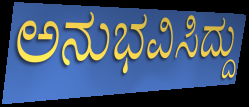
ಅನುಭವಿಸಿದ್ದು